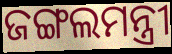
ଜଙ୍ଗଲମନ୍ତ୍ରୀ